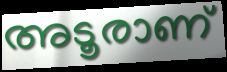
അടൂരാണ്